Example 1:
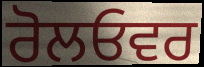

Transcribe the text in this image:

ਰੋਲਓਵਰ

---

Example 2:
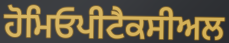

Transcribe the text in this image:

ਹੋਮਿਓਪੀਟੈਕਸੀਅਲ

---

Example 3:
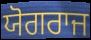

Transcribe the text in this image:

ਯੋਗਰਾਜ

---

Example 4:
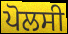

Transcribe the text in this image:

ਪੋਲਸੀ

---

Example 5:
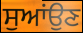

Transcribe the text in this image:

ਸੁਆਂਉਣ